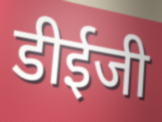
डीईजी